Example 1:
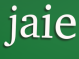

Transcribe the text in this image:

jaie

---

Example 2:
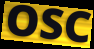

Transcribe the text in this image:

OSC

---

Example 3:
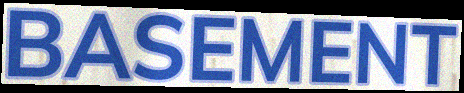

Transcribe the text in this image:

BASEMENT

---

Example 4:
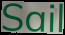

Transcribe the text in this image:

Sail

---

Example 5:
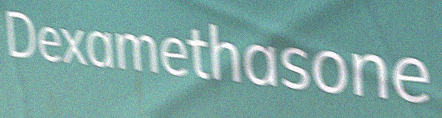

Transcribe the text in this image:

Dexamethasone